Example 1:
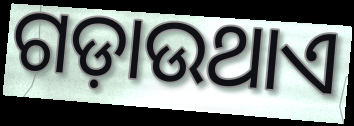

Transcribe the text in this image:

ଗଡ଼ାଉଥାଏ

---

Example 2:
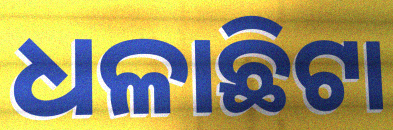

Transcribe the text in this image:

ଧଳାଛିଟା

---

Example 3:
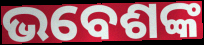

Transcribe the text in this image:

ଭବେଶଙ୍କ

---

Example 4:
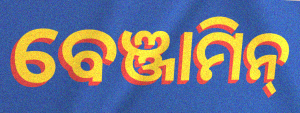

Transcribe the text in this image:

ବେଞ୍ଜାମିନ୍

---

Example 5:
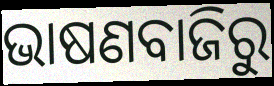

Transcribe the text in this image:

ଭାଷଣବାଜିରୁ